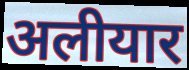
अलीयार